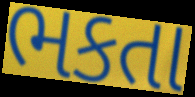
ભકતા